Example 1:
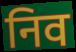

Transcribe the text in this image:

निव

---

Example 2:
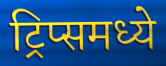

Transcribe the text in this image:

ट्रिप्समध्ये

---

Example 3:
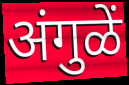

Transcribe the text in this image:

अंगुळें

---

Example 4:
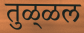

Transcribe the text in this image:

तुळ्‌ळल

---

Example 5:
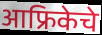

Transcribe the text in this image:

आफ्रिकेचे